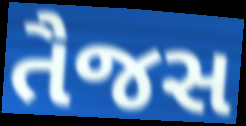
તૈજસ